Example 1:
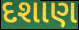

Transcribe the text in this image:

દશાણ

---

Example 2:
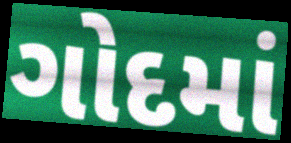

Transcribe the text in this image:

ગોદમાં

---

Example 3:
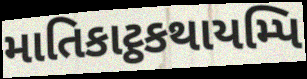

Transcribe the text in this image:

માતિકાટ્ઠકથાયમ્પિ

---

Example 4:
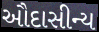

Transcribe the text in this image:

ઔદાસીન્ય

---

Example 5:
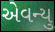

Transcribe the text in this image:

એવન્યુ